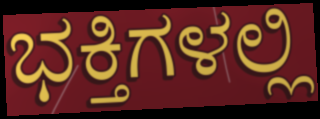
ಭಕ್ತಿಗಳಲ್ಲಿ